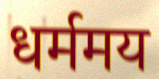
धर्ममय